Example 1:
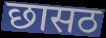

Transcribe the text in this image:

छासठ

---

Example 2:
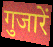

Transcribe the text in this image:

गुजारें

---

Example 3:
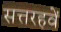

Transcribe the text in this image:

सत्तरहवें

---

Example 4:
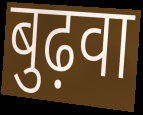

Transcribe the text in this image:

बुढ़वा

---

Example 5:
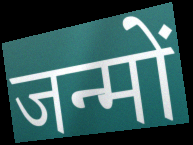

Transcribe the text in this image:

जन्मों